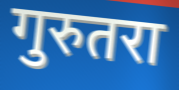
गुरुतरा